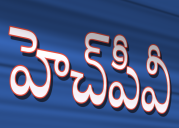
హెచ్‌పీవీ